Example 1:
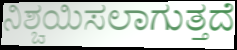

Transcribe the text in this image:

ನಿಶ್ಚಯಿಸಲಾಗುತ್ತದೆ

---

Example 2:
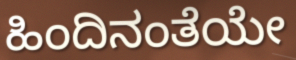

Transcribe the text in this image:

ಹಿಂದಿನಂತೆಯೇ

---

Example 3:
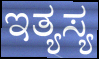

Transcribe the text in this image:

ಇತ್ಯಸ್ಯ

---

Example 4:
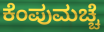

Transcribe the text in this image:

ಕೆಂಪುಮಚ್ಚೆ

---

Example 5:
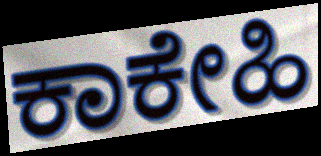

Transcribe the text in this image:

ಕಾಕೇಹಿ